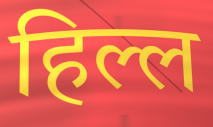
हिल्ल